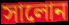
সালোন